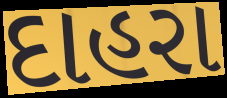
દાહરા